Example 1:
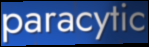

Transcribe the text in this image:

paracytic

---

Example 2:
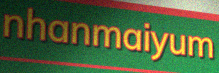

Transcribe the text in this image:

nhanmaiyum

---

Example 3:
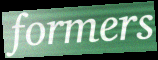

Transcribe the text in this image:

formers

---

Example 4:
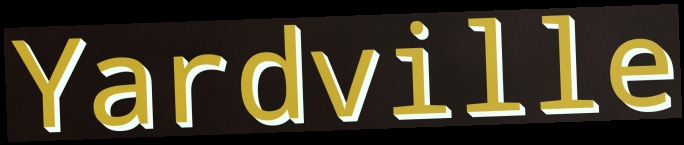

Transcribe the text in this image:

Yardville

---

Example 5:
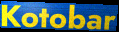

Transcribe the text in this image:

Kotobar